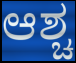
ಆಶ್ಚ